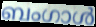
ബംഗാൾ